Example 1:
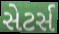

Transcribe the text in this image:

સેટર્સ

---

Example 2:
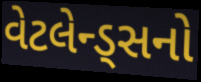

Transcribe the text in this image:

વેટલેન્ડ્સનો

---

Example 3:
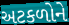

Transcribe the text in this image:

અટકળોને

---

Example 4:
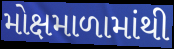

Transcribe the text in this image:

મોક્ષમાળામાંથી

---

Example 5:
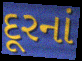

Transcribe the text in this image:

દૂરનાં